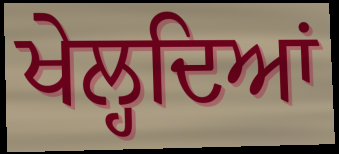
ਖੇਲ੍ਹਦਿਆਂ